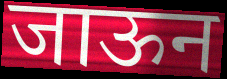
जाऊन